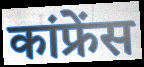
कांफ्रेंस